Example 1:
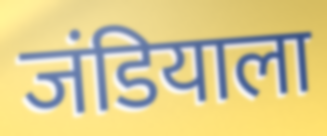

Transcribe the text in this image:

जंडियाला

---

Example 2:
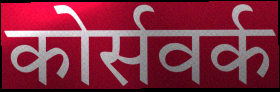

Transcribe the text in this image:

कोर्सवर्क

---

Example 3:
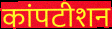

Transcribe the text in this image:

कांपटीशन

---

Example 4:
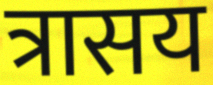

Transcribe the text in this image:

त्रासय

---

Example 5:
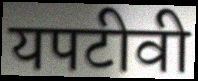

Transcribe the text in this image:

यपटीवी